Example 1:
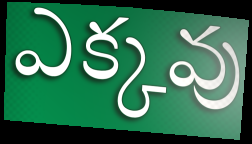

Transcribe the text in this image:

ఎక్కవు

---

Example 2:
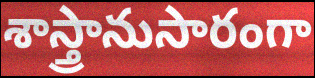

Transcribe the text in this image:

శాస్త్రానుసారంగా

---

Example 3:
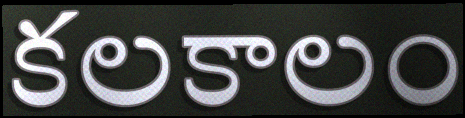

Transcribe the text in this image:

కలకాలం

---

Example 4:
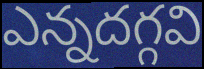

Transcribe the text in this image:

ఎన్నదగ్గవి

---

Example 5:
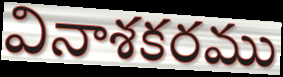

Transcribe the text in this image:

వినాశకరము